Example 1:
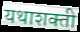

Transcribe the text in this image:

यथाशक्‍ती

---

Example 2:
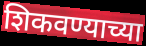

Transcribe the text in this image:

शिकवण्याच्या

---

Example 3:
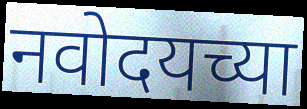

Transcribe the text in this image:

नवोदयच्या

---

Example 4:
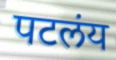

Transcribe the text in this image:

पटलंय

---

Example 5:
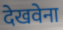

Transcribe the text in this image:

देखवेना